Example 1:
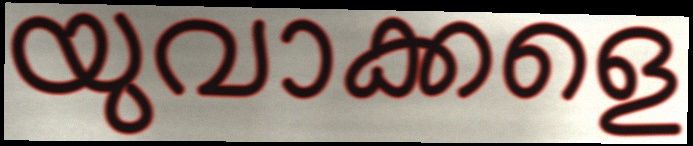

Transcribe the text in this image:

യുവാക്കളെ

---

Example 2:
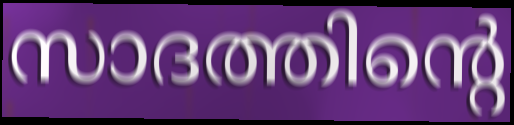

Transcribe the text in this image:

സാദത്തിന്റെ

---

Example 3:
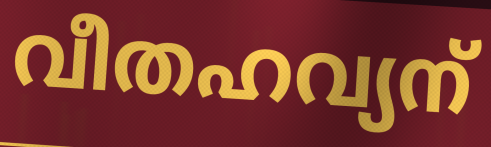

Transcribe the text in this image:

വീതഹവ്യന്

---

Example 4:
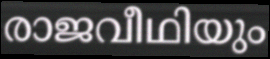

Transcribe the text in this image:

രാജവീഥിയും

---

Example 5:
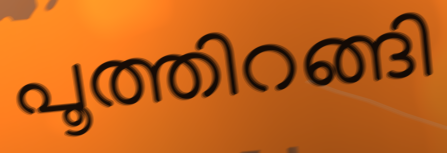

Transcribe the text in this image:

പൂത്തിറങ്ങി